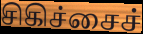
சிகிச்சைச்